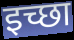
इच्छा